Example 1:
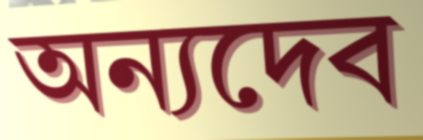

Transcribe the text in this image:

অন্যদেব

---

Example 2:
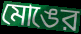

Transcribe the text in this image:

মোঙের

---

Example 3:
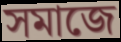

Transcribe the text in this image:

সমাজে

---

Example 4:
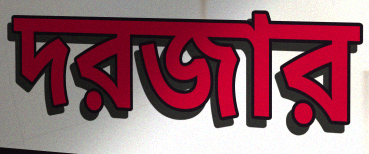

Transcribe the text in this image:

দরজার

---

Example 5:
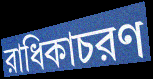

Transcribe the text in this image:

রাধিকাচরণ